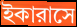
ইকারাসে